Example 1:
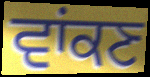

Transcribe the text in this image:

ਵਾਂਕਣ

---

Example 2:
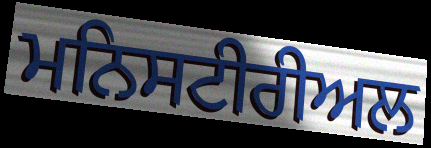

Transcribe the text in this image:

ਮਨਿਸਟੀਰੀਅਲ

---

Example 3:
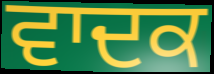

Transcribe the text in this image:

ਵਾਦਕ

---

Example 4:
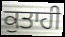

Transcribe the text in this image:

ਕੁਤਾਹੀ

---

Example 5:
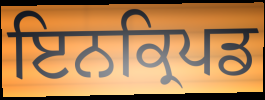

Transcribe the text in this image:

ਇਨਕ੍ਰਿਪਡ